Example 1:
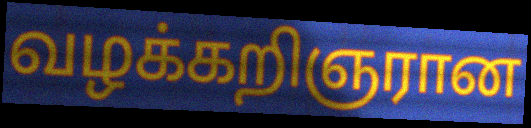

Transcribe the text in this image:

வழக்கறிஞரான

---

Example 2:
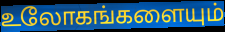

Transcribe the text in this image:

உலோகங்களையும்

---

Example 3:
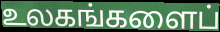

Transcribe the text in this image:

உலகங்களைப்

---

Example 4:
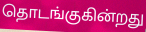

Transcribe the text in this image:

தொடங்குகின்றது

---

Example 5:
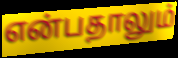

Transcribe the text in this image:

என்பதாலும்